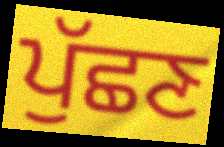
ਪੁੱਛਣ